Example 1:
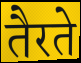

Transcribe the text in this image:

तैरते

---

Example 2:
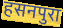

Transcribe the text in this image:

हसनपुरा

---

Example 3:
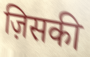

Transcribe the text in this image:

ज़िसकी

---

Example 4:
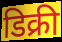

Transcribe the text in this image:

डिक्री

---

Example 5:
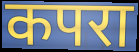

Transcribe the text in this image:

कपरा